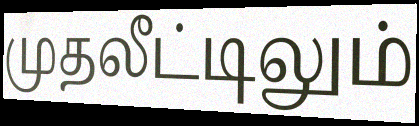
முதலீட்டிலும்